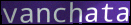
vanchata